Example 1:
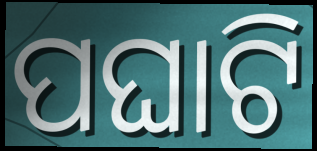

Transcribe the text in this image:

ପଘାଟି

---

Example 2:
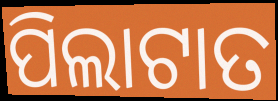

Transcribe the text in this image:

ପିଲାଟାତ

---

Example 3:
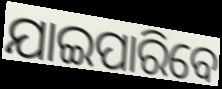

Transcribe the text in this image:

ଯାଇପାରିବେ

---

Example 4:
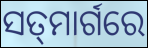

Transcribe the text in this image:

ସତ୍‌ମାର୍ଗରେ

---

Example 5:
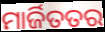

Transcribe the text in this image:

ମାର୍ଜିତତର